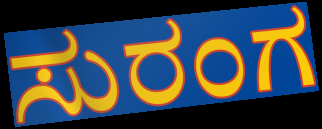
ಸುರಂಗ